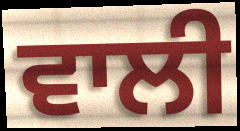
ਵਾਲੀ